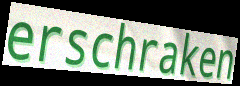
erschraken